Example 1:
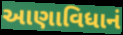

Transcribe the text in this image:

આણાવિધાનં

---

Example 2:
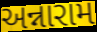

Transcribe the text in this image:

અન્નારામ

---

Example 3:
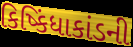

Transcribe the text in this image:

કિષ્કિંધાકાંડની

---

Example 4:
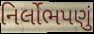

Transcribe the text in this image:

નિર્લોભપણું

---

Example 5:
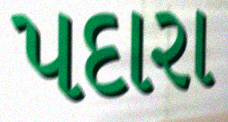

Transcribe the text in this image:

પદારા